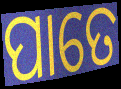
ପାତେ